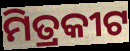
ମିତ୍ରକୀଟ